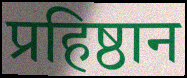
प्रहिष्ठान